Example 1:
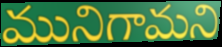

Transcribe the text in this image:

మునిగామని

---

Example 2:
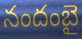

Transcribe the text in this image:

నందంబై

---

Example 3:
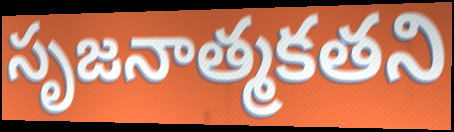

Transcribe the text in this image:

సృజనాత్మకతని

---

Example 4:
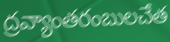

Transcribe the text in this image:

ద్రవ్యాంతరంబులచేత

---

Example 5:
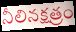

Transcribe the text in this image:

నీలినక్షత్రం